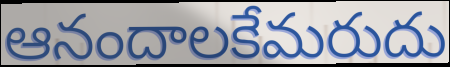
ఆనందాలకేమరుదు